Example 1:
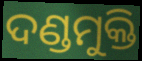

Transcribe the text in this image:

ଦଣ୍ଡମୁକ୍ତି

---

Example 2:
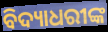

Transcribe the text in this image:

ବିଦ୍ୟାଧରୀଙ୍କ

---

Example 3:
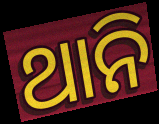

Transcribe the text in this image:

ଥାନି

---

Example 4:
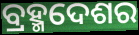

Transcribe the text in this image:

ବ୍ରହ୍ମଦେଶର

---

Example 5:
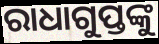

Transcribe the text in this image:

ରାଧାଗୁପ୍ତଙ୍କୁ